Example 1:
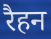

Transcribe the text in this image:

रैहन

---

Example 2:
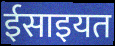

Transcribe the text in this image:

ईसाइयत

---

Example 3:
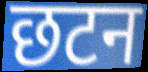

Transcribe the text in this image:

छटन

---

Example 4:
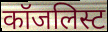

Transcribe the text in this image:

कॉजलिस्ट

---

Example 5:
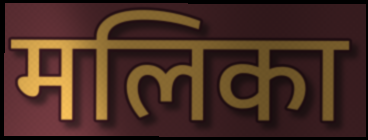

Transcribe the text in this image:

मलिका